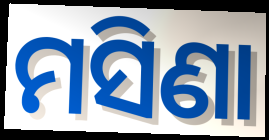
ମସିଣା